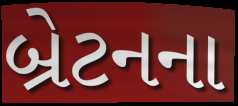
બ્રેટનના